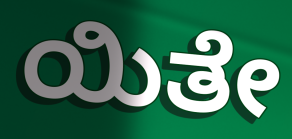
ಯಿತೇ